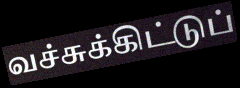
வச்சுக்கிட்டுப்